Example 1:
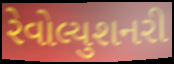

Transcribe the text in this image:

રેવોલ્યુશનરી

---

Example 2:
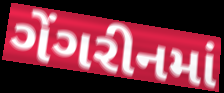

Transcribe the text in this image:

ગેંગરીનમાં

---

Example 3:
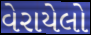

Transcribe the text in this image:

વેરાયેલો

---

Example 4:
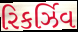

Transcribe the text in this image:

રિકર્ઝિવ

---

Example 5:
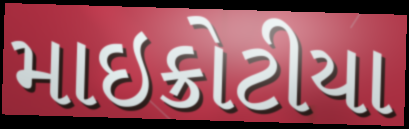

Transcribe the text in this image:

માઇક્રોટીયા